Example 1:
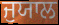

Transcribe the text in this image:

ਜੁਯਾਲ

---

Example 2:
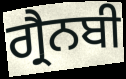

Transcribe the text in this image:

ਗ੍ਰੈਨਬੀ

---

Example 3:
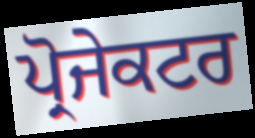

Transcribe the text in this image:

ਪ੍ਰੋਜੇਕਟਰ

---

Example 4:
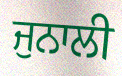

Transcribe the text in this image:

ਜੁਨਾਲੀ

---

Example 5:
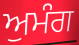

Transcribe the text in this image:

ਅੁਮੰਗ